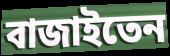
বাজাইতেন